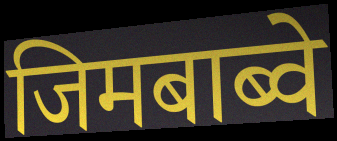
जिमबाब्वे